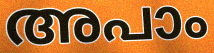
അപാം